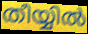
തീയ്യിൽ